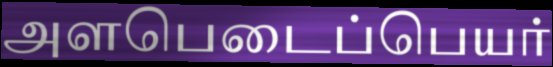
அளபெடைப்பெயர்